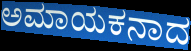
ಅಮಾಯಕನಾದ